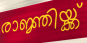
രാജ്ഞിയ്ക്ക്